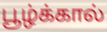
பூழ்க்கால்